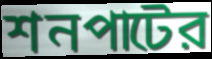
শনপাটের